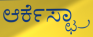
ಆರ್ಕೆಸ್ಟ್ರಾ